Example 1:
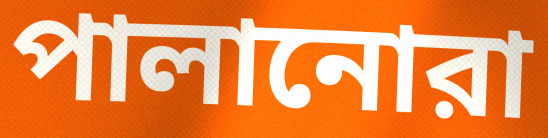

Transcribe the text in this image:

পালানোরা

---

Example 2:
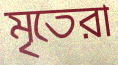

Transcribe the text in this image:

মৃতেরা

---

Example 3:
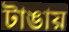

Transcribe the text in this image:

টাঙায়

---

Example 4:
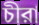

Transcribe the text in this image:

চীরা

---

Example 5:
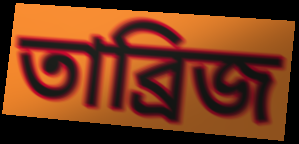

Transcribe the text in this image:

তাব্রিজ